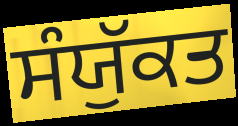
ਸੰਯੁੱਕਤ